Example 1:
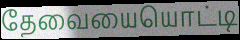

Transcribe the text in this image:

தேவையையொட்டி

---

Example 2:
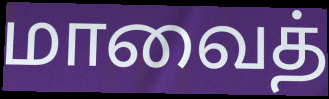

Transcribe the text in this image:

மாவைத்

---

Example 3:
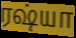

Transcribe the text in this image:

ரஷ்யா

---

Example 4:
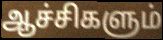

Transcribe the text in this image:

ஆச்சிகளும்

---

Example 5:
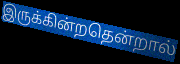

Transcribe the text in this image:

இருக்கின்றதென்றால்